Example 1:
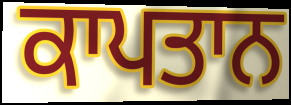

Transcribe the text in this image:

ਕਾਪਤਾਨ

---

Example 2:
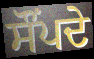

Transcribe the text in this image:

ਸੌਂਪਦੇ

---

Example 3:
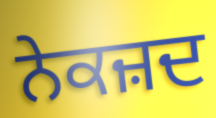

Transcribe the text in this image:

ਨੇਕਜ਼ਦ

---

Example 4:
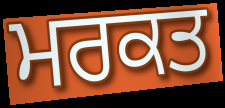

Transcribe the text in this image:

ਮਰਕਤ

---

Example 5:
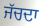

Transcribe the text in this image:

ਜੱਚਦਾ